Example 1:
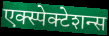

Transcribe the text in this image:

एक्स्पेक्टेशन्स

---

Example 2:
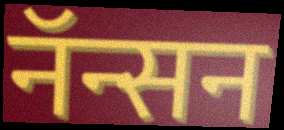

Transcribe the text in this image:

नॅन्सन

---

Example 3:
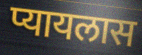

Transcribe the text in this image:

प्यायलास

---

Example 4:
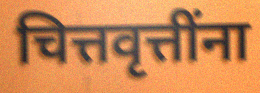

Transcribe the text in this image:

चित्तवृत्तींना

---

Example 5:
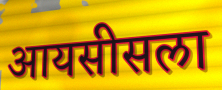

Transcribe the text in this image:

आयसीसला